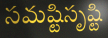
సమష్టిసృష్టి